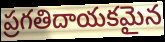
ప్రగతిదాయకమైన